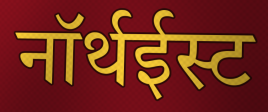
नॉर्थईस्ट